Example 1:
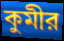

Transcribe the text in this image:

কুমীর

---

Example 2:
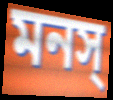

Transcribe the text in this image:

মনস্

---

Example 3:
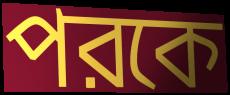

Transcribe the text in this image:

পরকে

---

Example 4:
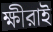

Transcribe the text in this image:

ক্ষীরাই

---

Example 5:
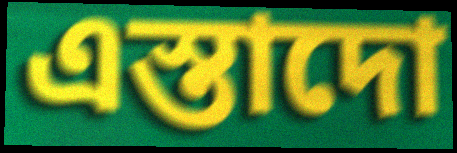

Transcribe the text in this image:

এস্তাদো